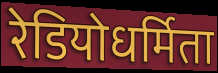
रेडियोधर्मिता